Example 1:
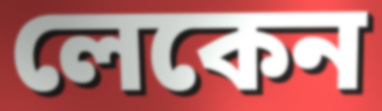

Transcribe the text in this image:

লেকেন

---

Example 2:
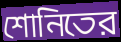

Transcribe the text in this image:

শোনিতের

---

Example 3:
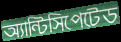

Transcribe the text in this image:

অ্যান্টিসিপেটেড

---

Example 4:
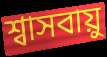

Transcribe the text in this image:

শ্বাসবায়ু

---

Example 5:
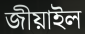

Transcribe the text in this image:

জীয়াইল